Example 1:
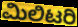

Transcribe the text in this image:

ಮಿಲಿಟರಿ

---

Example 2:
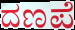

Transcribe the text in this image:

ದಣಪೆ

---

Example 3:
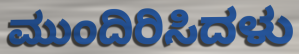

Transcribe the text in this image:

ಮುಂದಿರಿಸಿದಳು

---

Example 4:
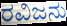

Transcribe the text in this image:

ರವಿಜನು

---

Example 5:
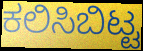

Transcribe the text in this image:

ಕಲಿಸಿಬಿಟ್ಟ